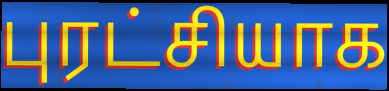
புரட்சியாக